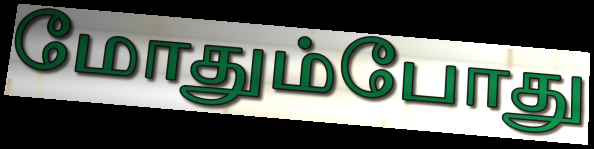
மோதும்போது